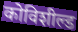
कोविशील्ड